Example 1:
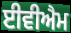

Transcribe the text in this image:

ਈਵੀਐਮ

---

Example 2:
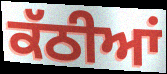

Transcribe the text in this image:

ਕੱਠੀਆਂ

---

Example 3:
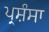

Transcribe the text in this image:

ਪ੍ਰਸ਼ੰਸਾ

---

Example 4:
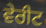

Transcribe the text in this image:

ਵੇਰੀਟ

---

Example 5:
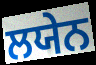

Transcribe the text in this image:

ਲਯੇਨ